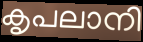
കൃപലാനി